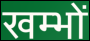
खम्भों